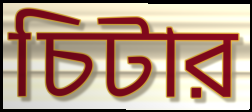
চিটার